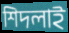
শিদলাই